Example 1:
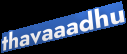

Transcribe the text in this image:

thavaaadhu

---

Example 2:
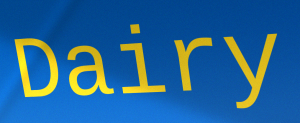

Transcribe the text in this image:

Dairy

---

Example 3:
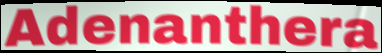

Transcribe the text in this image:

Adenanthera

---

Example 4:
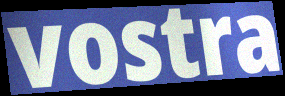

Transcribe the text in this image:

vostra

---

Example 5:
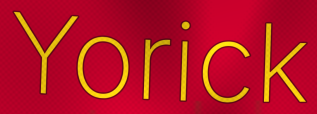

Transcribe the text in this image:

Yorick